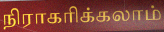
நிராகரிக்கலாம்